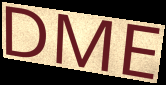
DME